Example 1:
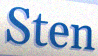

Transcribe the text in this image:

Sten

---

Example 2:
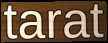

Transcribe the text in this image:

tarat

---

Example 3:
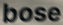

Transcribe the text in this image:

bose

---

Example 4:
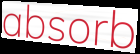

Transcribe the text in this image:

absorb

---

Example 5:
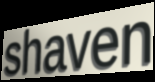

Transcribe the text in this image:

shaven